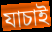
যাচাই